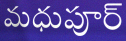
మధుపూర్